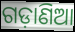
ଗଡ଼ାଣିଆ